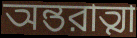
অন্তরাত্মা